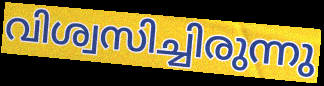
വിശ്വസിച്ചിരുന്നു